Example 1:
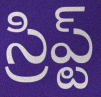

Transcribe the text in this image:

స్రిప్ట్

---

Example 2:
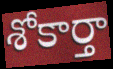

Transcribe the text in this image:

శోకార్తా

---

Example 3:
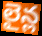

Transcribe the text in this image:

లైన్ల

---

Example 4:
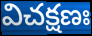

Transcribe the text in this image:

విచక్షణః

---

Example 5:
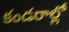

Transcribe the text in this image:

కండరాల్లో